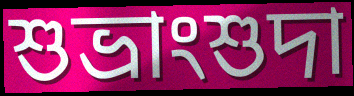
শুভ্রাংশুদা